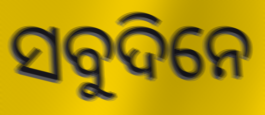
ସବୁଦିନେ